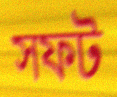
সফট